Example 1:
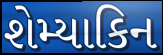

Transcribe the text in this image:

શેમ્યાકિન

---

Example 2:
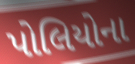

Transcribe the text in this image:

પોલિયોના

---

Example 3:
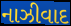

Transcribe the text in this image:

નાઝીવાદ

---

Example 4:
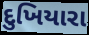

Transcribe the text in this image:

દુખિયારા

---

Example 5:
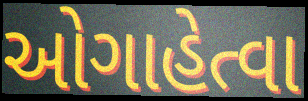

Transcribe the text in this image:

ઓગાહેત્વા